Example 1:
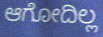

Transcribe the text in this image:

ಆಗೋದಿಲ್ಲ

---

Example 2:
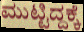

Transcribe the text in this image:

ಮುಟ್ಟಿದ್ದಕ್ಕೆ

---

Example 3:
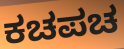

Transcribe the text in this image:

ಕಚಪಚ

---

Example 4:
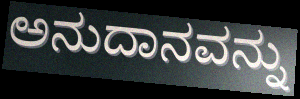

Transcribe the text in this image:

ಅನುದಾನವನ್ನು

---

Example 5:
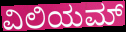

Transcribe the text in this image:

ವಿಲಿಯಮ್